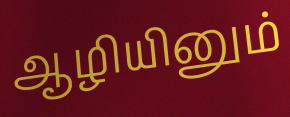
ஆழியினும்